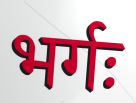
भर्गः